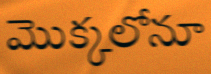
మొక్కలోనూ